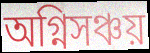
অগ্নিসঞ্চয়